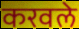
करवले